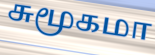
சுமூகமா